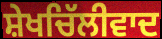
ਸ਼ੇਖਚਿੱਲੀਵਾਦ